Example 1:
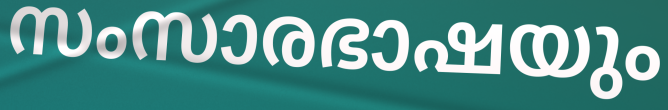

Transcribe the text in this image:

സംസാരഭാഷയും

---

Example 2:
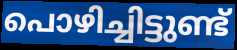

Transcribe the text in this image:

പൊഴിച്ചിട്ടുണ്ട്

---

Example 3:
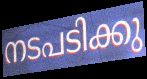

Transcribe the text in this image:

നടപടിക്കു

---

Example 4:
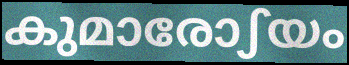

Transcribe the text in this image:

കുമാരോഽയം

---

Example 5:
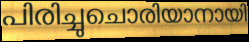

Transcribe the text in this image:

പിരിച്ചുചൊരിയാനായി